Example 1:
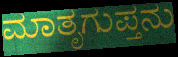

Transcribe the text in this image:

ಮಾತೃಗುಪ್ತನು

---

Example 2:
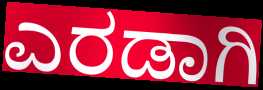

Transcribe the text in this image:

ಎರಡಾಗಿ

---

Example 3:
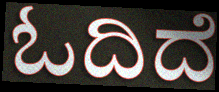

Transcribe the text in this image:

ಓದಿದೆ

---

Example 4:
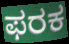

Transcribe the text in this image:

ಫರಕ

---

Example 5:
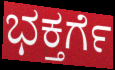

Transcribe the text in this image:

ಭಕ್ತರ್ಗೆ